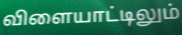
விளையாட்டிலும்